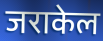
जराकेल